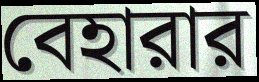
বেহারার